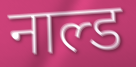
नाल्ड